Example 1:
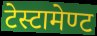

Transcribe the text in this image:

टेस्टामेण्ट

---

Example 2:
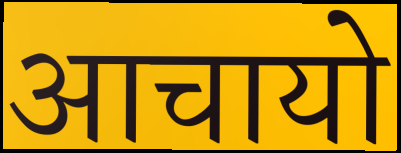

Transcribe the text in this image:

आचायो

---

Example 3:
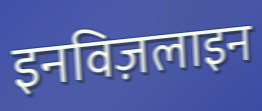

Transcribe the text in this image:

इनविज़लाइन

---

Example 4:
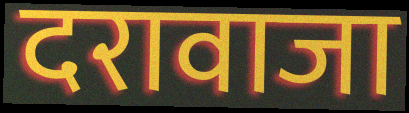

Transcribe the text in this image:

दरावाजा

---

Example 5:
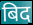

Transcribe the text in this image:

बिद